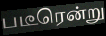
படீரென்று